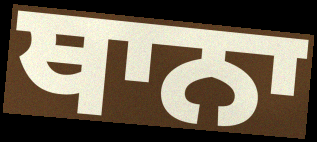
ਥਾਨਾ